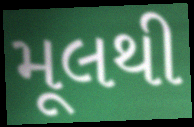
મૂલથી